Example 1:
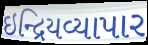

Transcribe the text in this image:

ઇન્દ્રિયવ્યાપાર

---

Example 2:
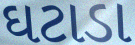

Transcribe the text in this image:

ઘટાડા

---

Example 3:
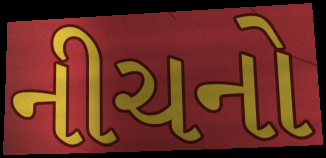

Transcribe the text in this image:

નીચનો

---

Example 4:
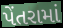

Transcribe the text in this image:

પેંતરામાં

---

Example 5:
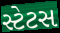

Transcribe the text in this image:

સ્ટેટસ